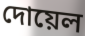
দোয়েল